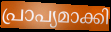
പ്രാപ്യമാക്കി